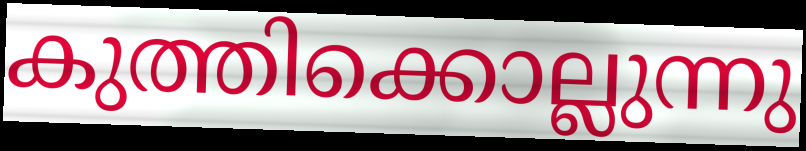
കുത്തിക്കൊല്ലുന്നു